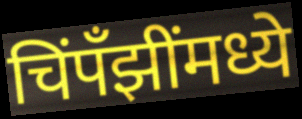
चिंपँझींमध्ये